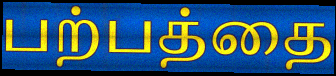
பற்பத்தை